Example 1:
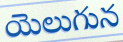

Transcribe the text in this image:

యెలుగున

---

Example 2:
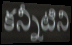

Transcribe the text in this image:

కన్నీటిని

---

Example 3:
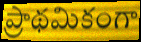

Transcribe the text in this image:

ప్రాథమికంగా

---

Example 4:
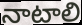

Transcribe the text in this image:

నాటాలి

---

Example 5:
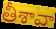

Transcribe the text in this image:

తీశావా